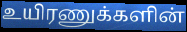
உயிரணுக்களின்